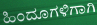
ಹಿಂದೂಗಳಿಗಾಗಿ